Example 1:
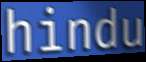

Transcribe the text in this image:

hindu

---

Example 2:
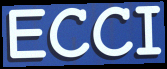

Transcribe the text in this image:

ECCI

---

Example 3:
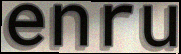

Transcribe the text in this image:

enru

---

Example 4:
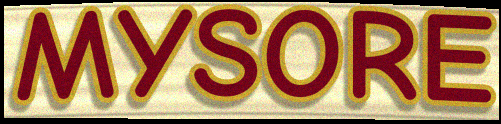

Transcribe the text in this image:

MYSORE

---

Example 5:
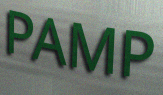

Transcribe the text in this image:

PAMP